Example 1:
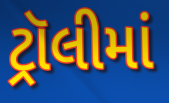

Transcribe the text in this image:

ટ્રૉલીમાં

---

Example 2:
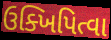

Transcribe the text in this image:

ઉક્ખિપિત્વા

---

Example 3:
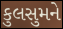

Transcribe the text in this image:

કુલસુમને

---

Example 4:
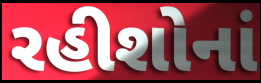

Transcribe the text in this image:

રહીશોનાં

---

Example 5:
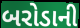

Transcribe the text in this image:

બરોડાની